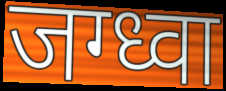
जग्ध्वा